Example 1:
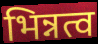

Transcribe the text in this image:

भिन्नत्व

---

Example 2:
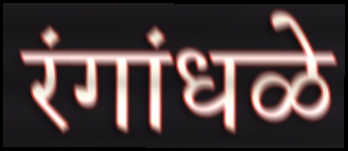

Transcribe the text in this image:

रंगांधळे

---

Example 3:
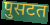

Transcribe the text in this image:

पुसटत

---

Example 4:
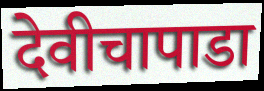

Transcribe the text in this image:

देवीचापाडा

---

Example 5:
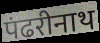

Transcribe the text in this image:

पंढरीनाथ